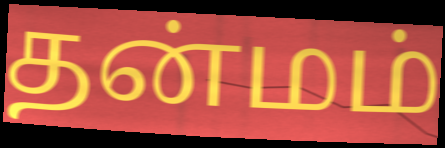
தன்மம்